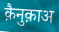
क़ैनुक़ाअ